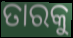
ତାରକୁ